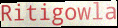
Ritigowla